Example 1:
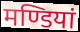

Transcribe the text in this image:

मण्डियां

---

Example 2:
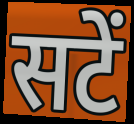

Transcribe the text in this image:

सटें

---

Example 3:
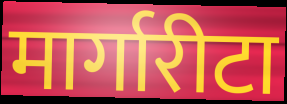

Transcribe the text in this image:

मार्गारीटा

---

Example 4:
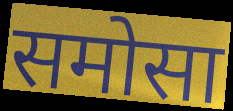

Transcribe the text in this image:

समोसा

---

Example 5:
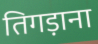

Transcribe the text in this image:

तिगड़ाना